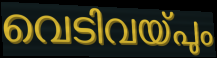
വെടിവയ്പും